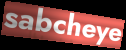
sabcheye